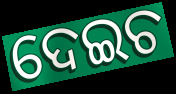
ଦେଇଚ